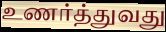
உணர்த்துவது